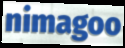
nimagoo